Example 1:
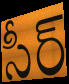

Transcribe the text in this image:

సీర్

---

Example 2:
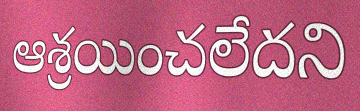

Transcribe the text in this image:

ఆశ్రయించలేదని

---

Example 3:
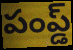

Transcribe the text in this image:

పంప్డ్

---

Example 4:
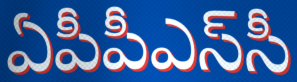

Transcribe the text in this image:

ఏపీపీఎస్‌సీ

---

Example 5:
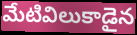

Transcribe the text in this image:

మేటివిలుకాడైన